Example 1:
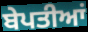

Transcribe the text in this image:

ਬੇਪਤੀਆਂ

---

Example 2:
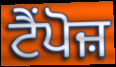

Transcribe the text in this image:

ਟੈਂਪੋਜ਼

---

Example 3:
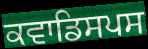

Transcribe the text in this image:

ਕਵਾਡਿਸਪਸ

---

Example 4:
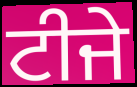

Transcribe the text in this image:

ਟੀਜੇ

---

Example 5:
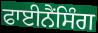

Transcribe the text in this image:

ਫਾਈਨੈਂਸਿੰਗ